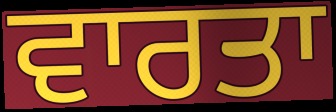
ਵਾਰਤਾ